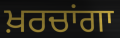
ਖ਼ਰਚਾਂਗਾ